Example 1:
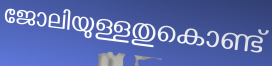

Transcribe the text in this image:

ജോലിയുള്ളതുകൊണ്ട്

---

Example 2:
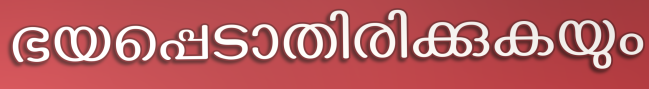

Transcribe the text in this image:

ഭയപ്പെടാതിരിക്കുകയും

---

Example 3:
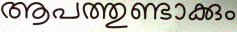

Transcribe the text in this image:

ആപത്തുണ്ടാക്കും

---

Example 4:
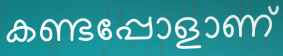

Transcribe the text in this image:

കണ്ടപ്പോളാണ്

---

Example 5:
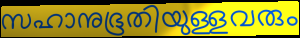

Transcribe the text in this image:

സഹാനുഭൂതിയുള്ളവരും